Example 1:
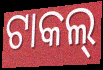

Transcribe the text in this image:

ଟାକଲ୍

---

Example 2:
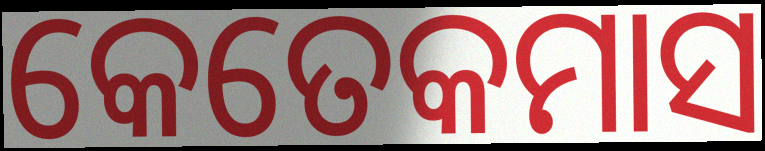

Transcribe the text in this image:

କେତେକମାସ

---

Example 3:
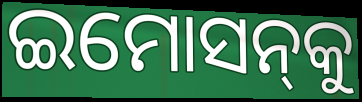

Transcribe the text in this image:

ଇମୋସନ୍‌କୁ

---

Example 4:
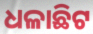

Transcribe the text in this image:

ଧଳାଛିଟ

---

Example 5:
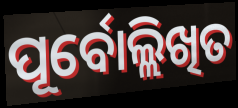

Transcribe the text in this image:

ପୂର୍ବୋଲ୍ଲିଖିତ